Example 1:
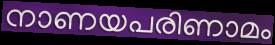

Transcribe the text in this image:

നാണയപരിണാമം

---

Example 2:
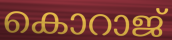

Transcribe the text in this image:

കൊറാജ്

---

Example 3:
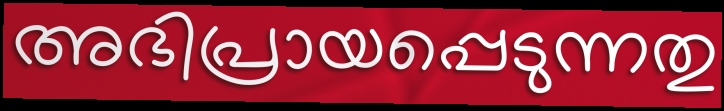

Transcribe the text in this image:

അഭിപ്രായപ്പെടുന്നതു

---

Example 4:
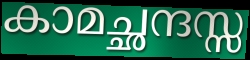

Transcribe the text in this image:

കാമച്ഛന്ദസ്സ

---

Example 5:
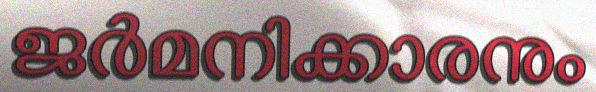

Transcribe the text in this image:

ജർമനിക്കാരനും